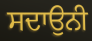
ਸਦਾਉਨੀ